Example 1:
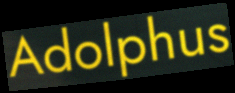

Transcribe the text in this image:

Adolphus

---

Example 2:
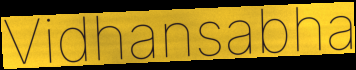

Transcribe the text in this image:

Vidhansabha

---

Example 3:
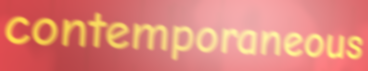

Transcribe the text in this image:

contemporaneous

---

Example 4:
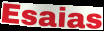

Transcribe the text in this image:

Esaias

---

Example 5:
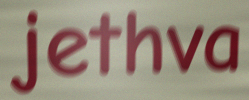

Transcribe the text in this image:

jethva